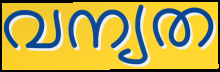
വന്യത